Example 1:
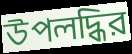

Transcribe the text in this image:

উপলদ্ধির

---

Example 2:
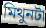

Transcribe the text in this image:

মিথুনটা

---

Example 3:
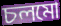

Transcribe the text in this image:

চলমো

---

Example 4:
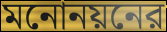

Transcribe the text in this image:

মনোনয়নের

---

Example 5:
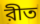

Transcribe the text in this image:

রীত